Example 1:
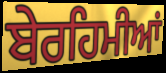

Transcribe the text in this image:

ਬੇਰਹਿਮੀਆਂ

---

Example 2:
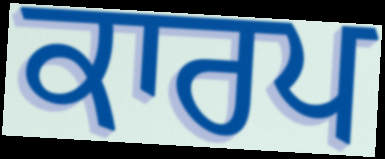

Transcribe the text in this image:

ਕਾਰਪ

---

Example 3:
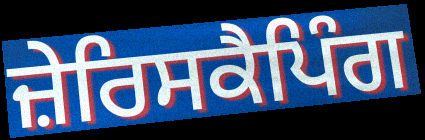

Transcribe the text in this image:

ਜ਼ੇਰਿਸਕੈਪਿੰਗ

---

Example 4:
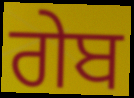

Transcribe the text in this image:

ਗੇਬ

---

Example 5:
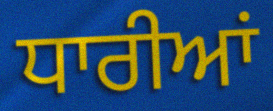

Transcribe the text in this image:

ਧਾਰੀਆਂ